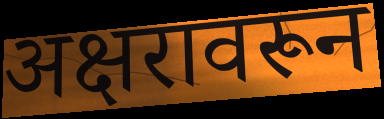
अक्षरावरून